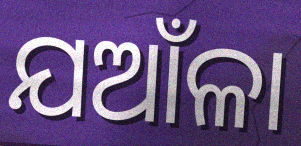
ଯଆଁଳା